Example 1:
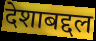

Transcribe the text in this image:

देशाबद्दल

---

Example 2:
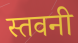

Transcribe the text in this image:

स्तवनी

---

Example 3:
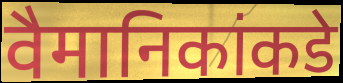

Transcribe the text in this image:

वैमानिकांकडे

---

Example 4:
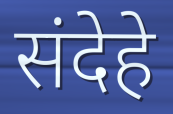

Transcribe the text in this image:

संदेहे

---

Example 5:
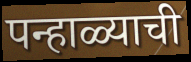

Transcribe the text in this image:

पन्हाळ्याची